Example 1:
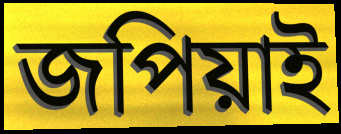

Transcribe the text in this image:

জপিয়াই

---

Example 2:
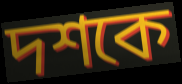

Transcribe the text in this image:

দশকে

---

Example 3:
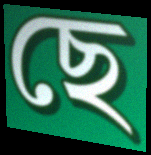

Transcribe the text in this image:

ছে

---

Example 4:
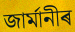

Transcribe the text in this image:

জাৰ্মানীৰ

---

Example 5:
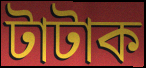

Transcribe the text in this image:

টাটাক